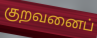
குறவனைப்